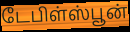
டேபிள்ஸ்பூன்